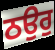
ਠਉਰੁ